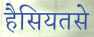
हैसियतसे